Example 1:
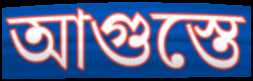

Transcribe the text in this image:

আগুস্তে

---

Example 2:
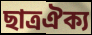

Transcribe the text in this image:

ছাত্রঐক্য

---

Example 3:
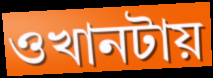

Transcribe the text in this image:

ওখানটায়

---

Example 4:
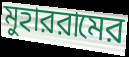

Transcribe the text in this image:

মুহাররামের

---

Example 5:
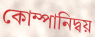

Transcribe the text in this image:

কোম্পানিদ্বয়